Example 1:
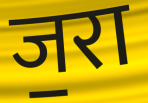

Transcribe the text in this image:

ज॒रा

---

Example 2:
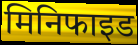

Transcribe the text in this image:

मिनिफाइड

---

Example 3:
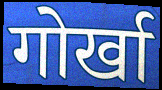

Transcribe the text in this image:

गोर्खा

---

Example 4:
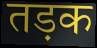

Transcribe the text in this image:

तड़क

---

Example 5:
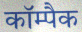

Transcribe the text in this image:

कॉम्पैक